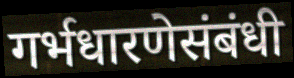
गर्भधारणेसंबंधी